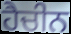
ਹੈਚੀਨ